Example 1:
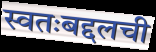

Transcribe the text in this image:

स्वतःबद्दलची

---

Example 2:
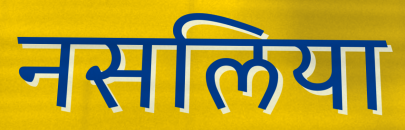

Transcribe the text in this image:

नसलिया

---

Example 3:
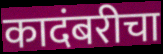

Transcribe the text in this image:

कादंबरीचा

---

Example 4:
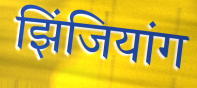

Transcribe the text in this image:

झिंजियांग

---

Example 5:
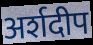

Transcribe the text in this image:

अर्शदीप